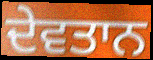
ਦੇਵਤਾਨ